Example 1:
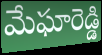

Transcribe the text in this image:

మేఘారెడ్డి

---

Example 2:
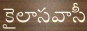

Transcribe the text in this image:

కైలాసవాసీ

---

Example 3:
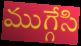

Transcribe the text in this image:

ముగ్గేసి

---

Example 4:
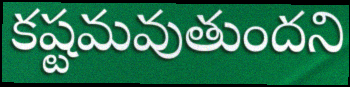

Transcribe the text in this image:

కష్టమవుతుందని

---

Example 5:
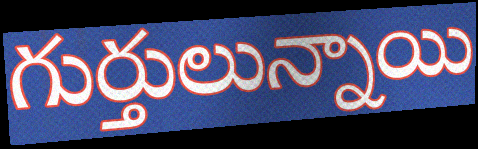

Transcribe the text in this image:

గుర్తులున్నాయి